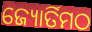
ଜ୍ୟୋର୍ତିମଠ